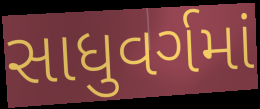
સાધુવર્ગમાં